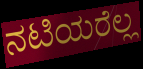
ನಟಿಯರೆಲ್ಲ